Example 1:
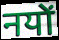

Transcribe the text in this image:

नयों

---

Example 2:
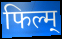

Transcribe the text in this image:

फिल्म्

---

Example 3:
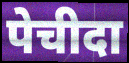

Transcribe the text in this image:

पेचीदा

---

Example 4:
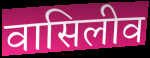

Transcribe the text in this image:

वासिलीव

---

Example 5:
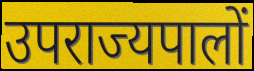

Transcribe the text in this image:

उपराज्यपालों